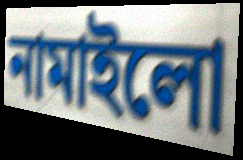
নামাইলো